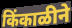
किंकाळीने